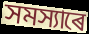
সমস্যাৰে